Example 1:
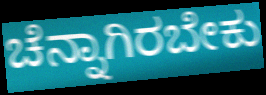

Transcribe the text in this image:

ಚೆನ್ನಾಗಿರಬೇಕು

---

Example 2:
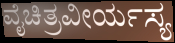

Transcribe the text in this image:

ವೈಚಿತ್ರವೀರ್ಯಸ್ಯ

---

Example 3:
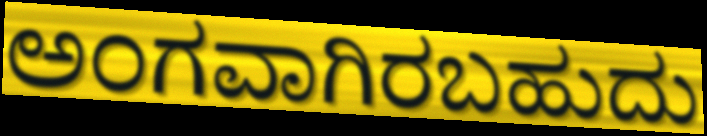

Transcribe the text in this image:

ಅಂಗವಾಗಿರಬಹುದು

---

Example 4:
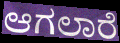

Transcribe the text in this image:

ಆಗಲಾರೆ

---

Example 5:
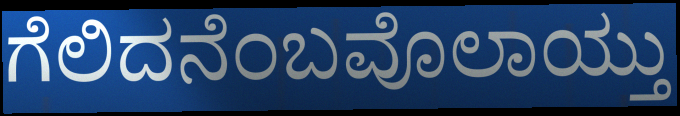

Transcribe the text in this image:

ಗೆಲಿದನೆಂಬವೊಲಾಯ್ತು